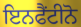
ਇਨਫੈਂਟੀਨੋ